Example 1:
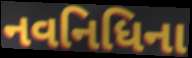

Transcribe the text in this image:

નવનિધિના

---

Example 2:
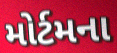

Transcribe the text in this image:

મોર્ટમના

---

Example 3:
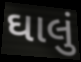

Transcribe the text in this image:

ઘાલું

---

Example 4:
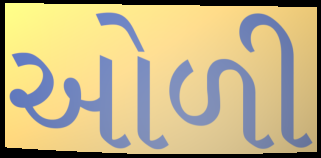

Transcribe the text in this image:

ઓળી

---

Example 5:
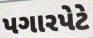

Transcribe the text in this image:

પગારપેટે